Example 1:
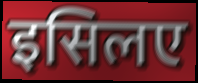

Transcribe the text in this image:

इसिलए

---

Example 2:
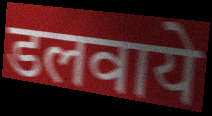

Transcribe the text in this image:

डलवाये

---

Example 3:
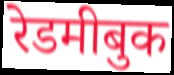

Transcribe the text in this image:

रेडमीबुक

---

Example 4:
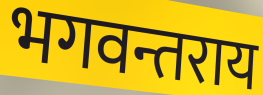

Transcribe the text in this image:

भगवन्तराय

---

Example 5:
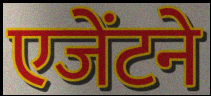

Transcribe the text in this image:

एजेंटने